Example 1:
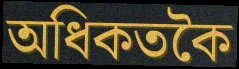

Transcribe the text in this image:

অধিকতকৈ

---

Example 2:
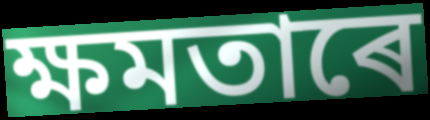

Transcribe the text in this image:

ক্ষমতাৰে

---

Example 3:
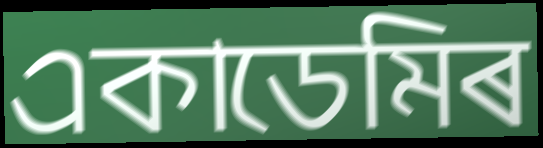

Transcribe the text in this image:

একাডেমিৰ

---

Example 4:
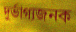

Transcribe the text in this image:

দুৰ্ভাগ্যজনক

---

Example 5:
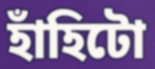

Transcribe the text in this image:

হাঁহিটো